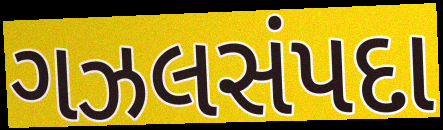
ગઝલસંપદા